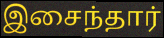
இசைந்தார்